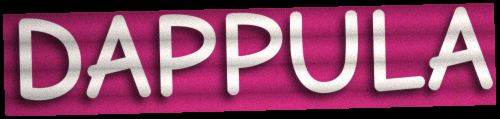
DAPPULA